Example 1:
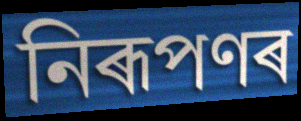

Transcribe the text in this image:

নিৰূপণৰ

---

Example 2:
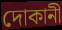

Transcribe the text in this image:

দোকানী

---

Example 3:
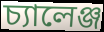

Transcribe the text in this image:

চ্যালেঞ্জ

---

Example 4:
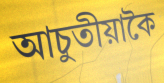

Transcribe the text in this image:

আচুতীয়াকৈ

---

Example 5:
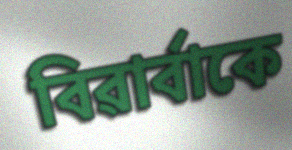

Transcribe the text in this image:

বিৱাৰ্বাকে